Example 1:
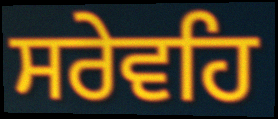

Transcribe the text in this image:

ਸਰੇਵਹਿ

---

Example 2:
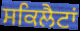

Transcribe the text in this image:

ਸਕਿਲੈਟਾਂ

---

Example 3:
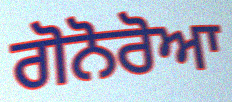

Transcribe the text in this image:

ਗੋਨੋਰੋਆ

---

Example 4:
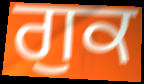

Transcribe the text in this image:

ਗੁਕ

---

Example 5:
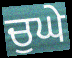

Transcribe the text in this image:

ਚੁਘੇ